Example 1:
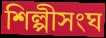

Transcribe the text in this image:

শিল্পীসংঘ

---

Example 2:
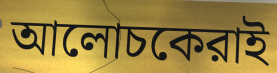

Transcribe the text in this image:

আলোচকেরাই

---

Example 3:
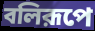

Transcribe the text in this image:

বলিরূপে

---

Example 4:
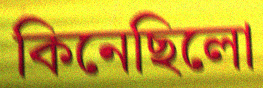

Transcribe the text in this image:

কিনেছিলো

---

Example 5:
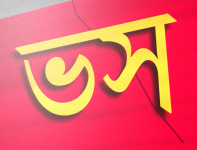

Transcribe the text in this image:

ভস